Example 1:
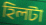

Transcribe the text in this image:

হিলটা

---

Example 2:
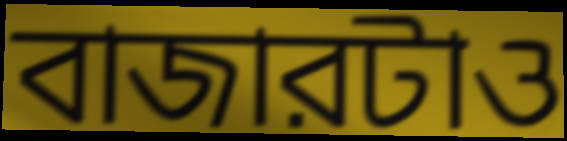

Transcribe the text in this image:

বাজারটাও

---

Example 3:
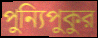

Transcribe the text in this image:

পুন্যিপুকুর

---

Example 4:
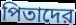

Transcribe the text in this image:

পিতাদের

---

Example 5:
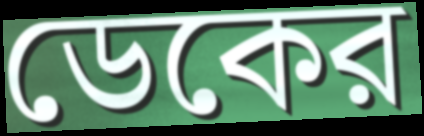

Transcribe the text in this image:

ডেকের